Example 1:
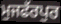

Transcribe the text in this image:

ਮੁਜਫੱਰਪੁਰ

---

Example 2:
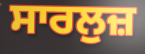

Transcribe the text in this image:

ਸਾਰਲੁਜ਼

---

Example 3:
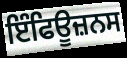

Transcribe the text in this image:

ਇੰਫਿਊਜ਼ਨਸ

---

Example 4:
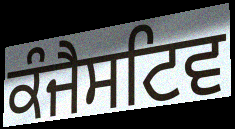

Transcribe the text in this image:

ਕੰਜੈਸਟਿਵ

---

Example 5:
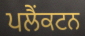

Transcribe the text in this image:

ਪਲੈਂਕਟਨ